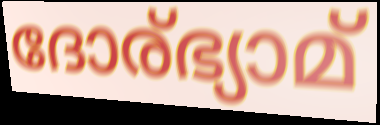
ദോര്ഭ്യാമ്